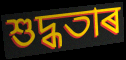
শুদ্ধতাৰ